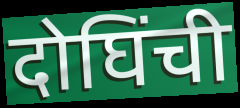
दोघिंची